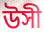
উসী